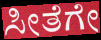
ಸೀತೆಗೇ